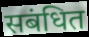
सबंधित